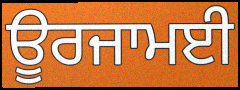
ਊਰਜਾਮਈ